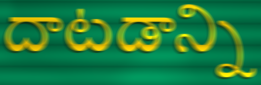
దాటడాన్ని